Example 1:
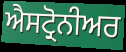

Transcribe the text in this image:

ਐਸਟ੍ਰੋਨੀਅਰ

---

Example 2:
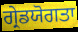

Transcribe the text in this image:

ਗ੍ਰੇਡਯੋਗਤਾ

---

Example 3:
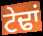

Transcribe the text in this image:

ਟੇਢਾਂ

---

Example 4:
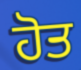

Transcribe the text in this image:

ਹੋਤ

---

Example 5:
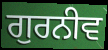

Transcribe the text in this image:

ਗੁਰਨੀਵ